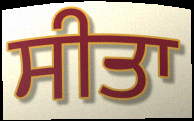
ਸੀਤਾ